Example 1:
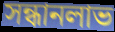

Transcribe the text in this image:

সন্ধানলাভ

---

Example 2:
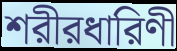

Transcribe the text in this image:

শরীরধারিণী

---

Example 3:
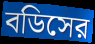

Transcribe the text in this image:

বডিসের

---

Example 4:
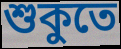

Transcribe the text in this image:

শুকুতে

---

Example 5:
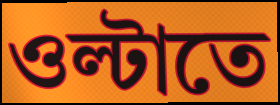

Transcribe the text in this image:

ওল্টাতে